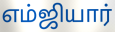
எம்ஜியார்